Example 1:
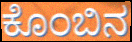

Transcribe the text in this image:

ಕೊಂಬಿನ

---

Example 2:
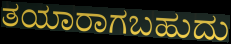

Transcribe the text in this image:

ತಯಾರಾಗಬಹುದು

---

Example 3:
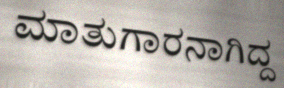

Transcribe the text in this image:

ಮಾತುಗಾರನಾಗಿದ್ದ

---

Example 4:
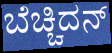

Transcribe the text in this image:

ಬೆಚ್ಚಿದನ್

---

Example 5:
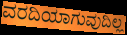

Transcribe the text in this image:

ವರದಿಯಾಗುವುದಿಲ್ಲ